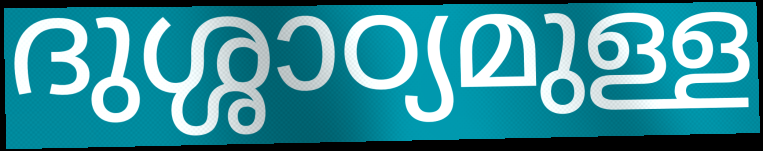
ദുശ്ശാഠ്യമുള്ള